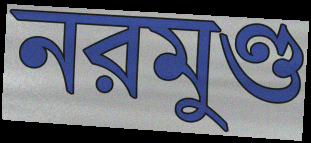
নরমুণ্ড